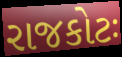
રાજકોટઃ